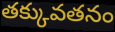
తక్కువతనం